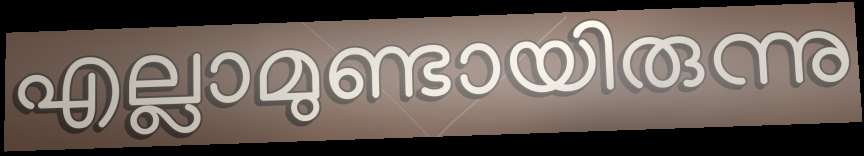
എല്ലാമുണ്ടായിരുന്നു